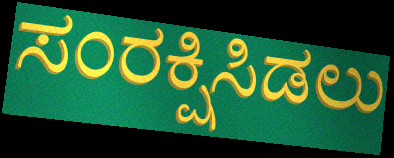
ಸಂರಕ್ಷಿಸಿಡಲು